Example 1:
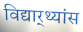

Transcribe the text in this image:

विद्यार्थ्यांस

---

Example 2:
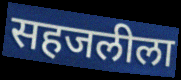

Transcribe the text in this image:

सहजलीला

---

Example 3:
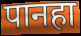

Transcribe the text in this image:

पानहा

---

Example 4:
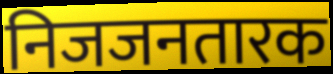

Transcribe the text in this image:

निजजनतारक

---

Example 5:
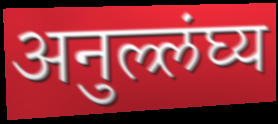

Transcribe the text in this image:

अनुल्लंघ्य